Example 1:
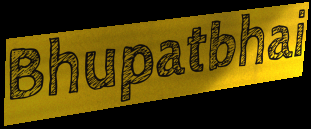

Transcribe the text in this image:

Bhupatbhai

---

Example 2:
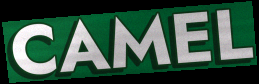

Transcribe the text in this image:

CAMEL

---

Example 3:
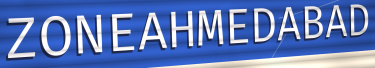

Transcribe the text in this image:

ZONEAHMEDABAD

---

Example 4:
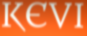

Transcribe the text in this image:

KEVI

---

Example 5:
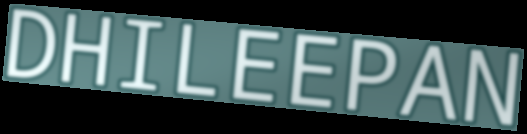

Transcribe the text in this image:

DHILEEPAN